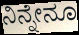
ನಿನ್ನೇನೂ